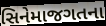
સિનેમાજગતના